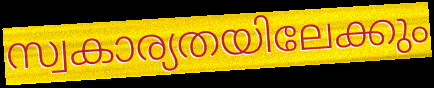
സ്വകാര്യതയിലേക്കും